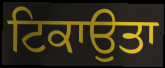
ਟਿਕਾਉਤਾ